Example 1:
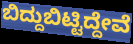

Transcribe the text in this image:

ಬಿದ್ದುಬಿಟ್ಟಿದ್ದೇವೆ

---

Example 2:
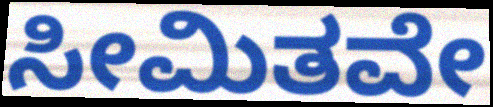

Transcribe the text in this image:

ಸೀಮಿತವೇ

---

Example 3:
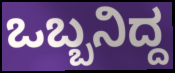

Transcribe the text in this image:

ಒಬ್ಬನಿದ್ದ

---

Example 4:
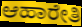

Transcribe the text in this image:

ಆಹಾರೇತಿ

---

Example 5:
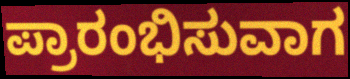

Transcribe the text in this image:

ಪ್ರಾರಂಭಿಸುವಾಗ